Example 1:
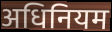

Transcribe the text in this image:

अधिनियम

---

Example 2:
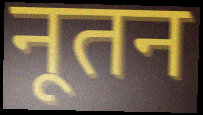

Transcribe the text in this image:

नूतन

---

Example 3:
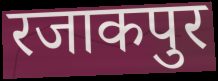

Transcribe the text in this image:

रजाकपुर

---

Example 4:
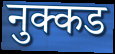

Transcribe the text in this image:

नुक्कड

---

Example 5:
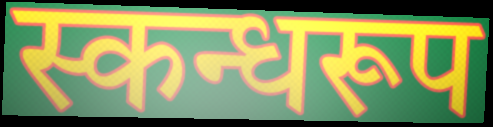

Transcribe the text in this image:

स्कन्धरूप